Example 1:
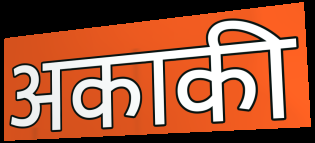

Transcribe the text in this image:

अकाकी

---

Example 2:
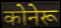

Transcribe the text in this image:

कोनेरू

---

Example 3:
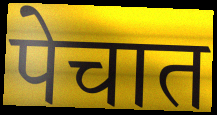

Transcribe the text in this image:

पेचात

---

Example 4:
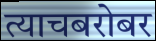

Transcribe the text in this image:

त्याचबरोबर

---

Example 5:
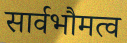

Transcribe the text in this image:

सार्वभौमत्व